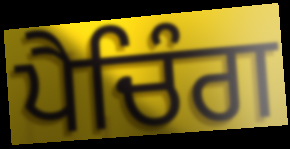
ਪੈਚਿੰਗ